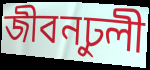
জীবনঢুলী